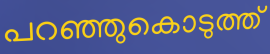
പറഞ്ഞുകൊടുത്ത്